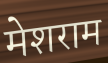
मेशराम